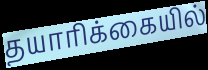
தயாரிக்கையில்